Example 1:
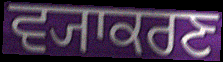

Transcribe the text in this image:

ਵ੍ਯਾਕਰਣ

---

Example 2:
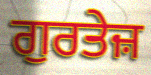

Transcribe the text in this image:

ਗੁਰਤੇਜ਼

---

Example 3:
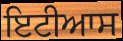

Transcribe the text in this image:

ਇਟੀਆਸ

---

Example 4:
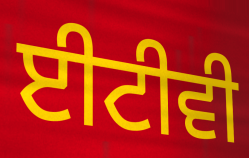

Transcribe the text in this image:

ਈਟੀਵੀ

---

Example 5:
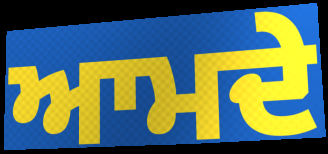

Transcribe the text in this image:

ਆਮਦੇ